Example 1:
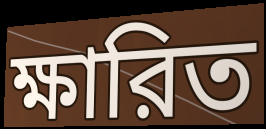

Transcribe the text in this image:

ক্ষারিত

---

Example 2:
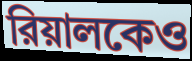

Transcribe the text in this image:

রিয়ালকেও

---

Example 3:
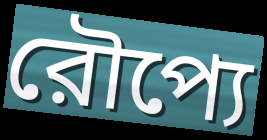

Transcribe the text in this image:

রৌপ্যে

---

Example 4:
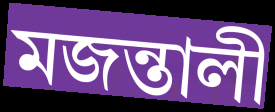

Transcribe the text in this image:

মজন্তালী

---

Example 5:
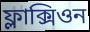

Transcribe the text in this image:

ফ্লাক্সিওন